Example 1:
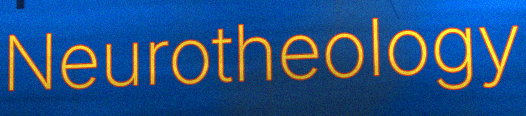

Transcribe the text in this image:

Neurotheology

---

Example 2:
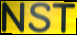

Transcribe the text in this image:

NST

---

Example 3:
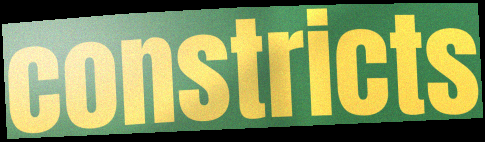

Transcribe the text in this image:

constricts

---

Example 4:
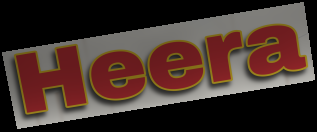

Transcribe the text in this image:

Heera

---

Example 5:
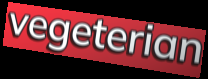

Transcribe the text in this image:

vegeterian